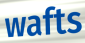
wafts